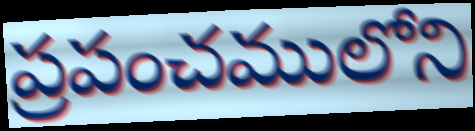
ప్రపంచములోని